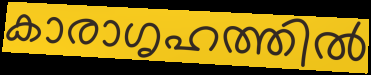
കാരാഗൃഹത്തിൽ